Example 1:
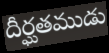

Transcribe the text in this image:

దీర్ఘతముడు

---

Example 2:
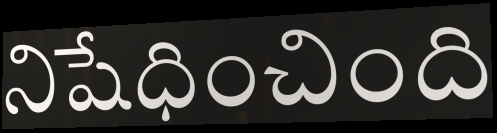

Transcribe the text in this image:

నిషేధించింది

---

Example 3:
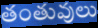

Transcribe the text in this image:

తంతువులు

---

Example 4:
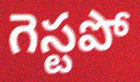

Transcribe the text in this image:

గెస్టపో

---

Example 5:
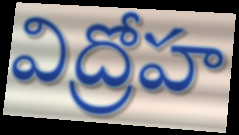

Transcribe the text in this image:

విద్రోహ